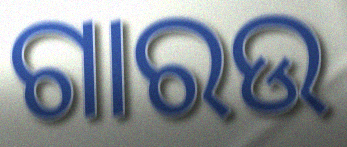
ଗାରଉ